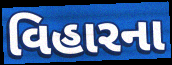
વિહારના